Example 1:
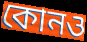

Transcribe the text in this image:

কোনও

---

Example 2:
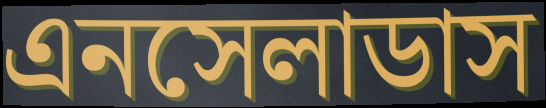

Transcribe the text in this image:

এনসেলাডাস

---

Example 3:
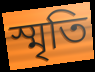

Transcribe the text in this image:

স্মৃতি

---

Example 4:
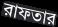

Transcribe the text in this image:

রাফতার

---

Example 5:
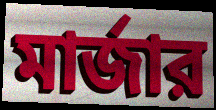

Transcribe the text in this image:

মার্জার